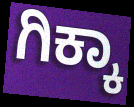
ಗಿಕ್ಕಾ